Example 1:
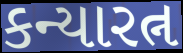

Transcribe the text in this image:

કન્યારત્ન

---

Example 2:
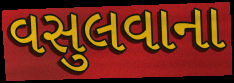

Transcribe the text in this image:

વસુલવાના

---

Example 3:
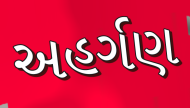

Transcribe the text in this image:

અહર્ગણ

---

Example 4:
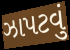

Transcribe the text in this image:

ઝાપટવું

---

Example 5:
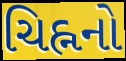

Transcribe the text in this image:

ચિહ્નનો